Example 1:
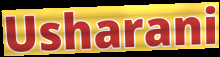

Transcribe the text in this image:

Usharani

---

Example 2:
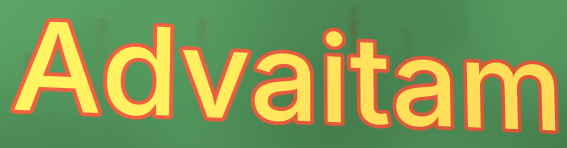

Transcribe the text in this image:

Advaitam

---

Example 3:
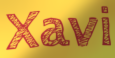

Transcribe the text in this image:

Xavi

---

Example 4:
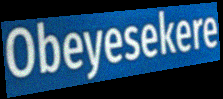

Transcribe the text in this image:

Obeyesekere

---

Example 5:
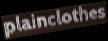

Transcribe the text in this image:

plainclothes